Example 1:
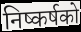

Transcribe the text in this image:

निष्कर्षको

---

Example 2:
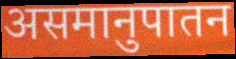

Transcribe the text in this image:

असमानुपातन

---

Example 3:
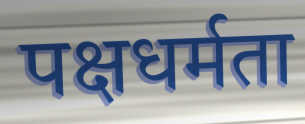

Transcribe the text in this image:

पक्षधर्मता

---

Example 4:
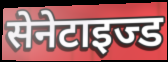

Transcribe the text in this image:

सेनेटाइज्ड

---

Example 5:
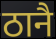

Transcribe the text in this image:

ठानै